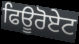
ਫਿਊਰੋਏਟ